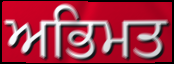
ਅਭਿਮਤ